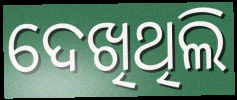
ଦେଖିଥିଲି